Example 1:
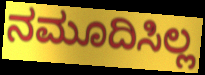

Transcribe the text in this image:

ನಮೂದಿಸಿಲ್ಲ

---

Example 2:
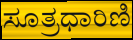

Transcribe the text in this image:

ಸೂತ್ರಧಾರಿಣಿ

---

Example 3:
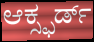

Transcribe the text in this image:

ಆಕ್ಸ್ಫರ್ಡ್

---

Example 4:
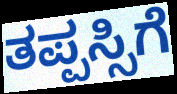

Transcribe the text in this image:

ತಪ್ಪಸ್ಸಿಗೆ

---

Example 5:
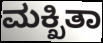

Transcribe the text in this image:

ಮಕ್ಖಿತಾ